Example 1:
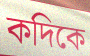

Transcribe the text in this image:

কদিকে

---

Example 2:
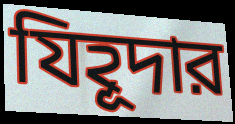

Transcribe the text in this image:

যিহূদার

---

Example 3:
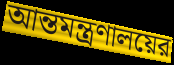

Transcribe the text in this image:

আন্তমন্ত্রণালয়ের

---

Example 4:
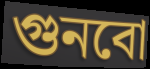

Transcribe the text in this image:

গুনবো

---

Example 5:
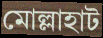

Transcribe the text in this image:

মোল্লাহাট